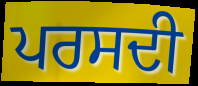
ਪਰਸਦੀ